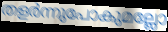
തളർന്നുപോകുമല്ലോ